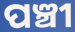
ପଞ୍ଚୀ